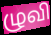
ழுவி